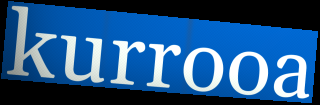
kurrooa